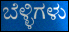
ಬೆಳ್ಳಿಗಳು